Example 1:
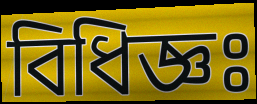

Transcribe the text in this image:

বিধিজ্ঞঃ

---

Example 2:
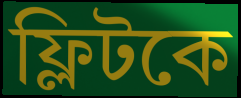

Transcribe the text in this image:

ফ্লিটকে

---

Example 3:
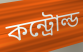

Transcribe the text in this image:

কন্ট্রোল্ড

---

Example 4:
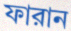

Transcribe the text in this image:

ফারান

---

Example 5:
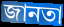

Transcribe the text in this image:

জানতা